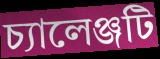
চ্যালেঞ্জটি